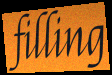
filling